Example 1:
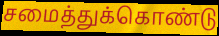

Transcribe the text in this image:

சமைத்துக்கொண்டு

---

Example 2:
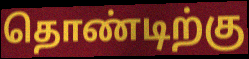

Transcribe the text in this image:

தொண்டிற்கு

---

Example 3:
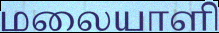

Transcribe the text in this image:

மலையாளி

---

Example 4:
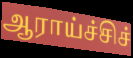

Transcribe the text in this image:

ஆராய்ச்சிச்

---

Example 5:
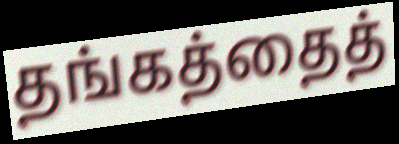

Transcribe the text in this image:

தங்கத்தைத்